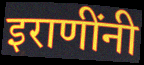
इराणींनी